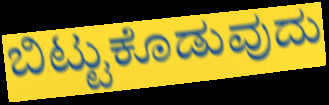
ಬಿಟ್ಟುಕೊಡುವುದು